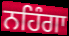
ਨਹਿੰਗਾ